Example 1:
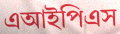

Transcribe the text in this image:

এআইপিএস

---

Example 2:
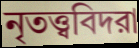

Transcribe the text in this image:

নৃতত্ত্ববিদরা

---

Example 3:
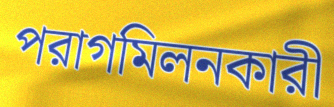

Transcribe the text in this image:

পরাগমিলনকারী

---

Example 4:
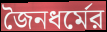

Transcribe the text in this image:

জৈনধর্মের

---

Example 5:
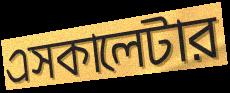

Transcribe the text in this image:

এসকালেটার